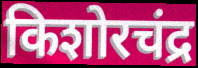
किशोरचंद्र